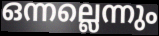
ഒന്നല്ലെന്നും